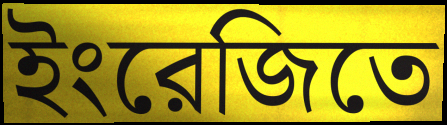
ইংরেজিতে